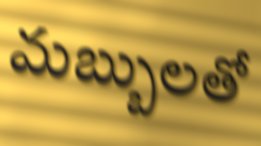
మబ్బులతో